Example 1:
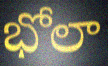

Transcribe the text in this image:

భోలా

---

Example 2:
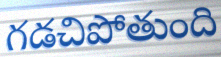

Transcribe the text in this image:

గడచిపోతుంది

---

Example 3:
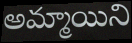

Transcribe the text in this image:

అమ్మాయిని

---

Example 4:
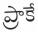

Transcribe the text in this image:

ప్రాకే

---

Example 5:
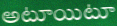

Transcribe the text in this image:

అటూయిటూ